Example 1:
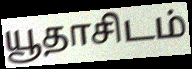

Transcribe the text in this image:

யூதாசிடம்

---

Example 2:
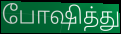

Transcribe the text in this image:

போஷித்து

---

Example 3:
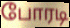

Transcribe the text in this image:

போரடி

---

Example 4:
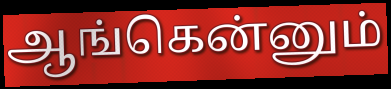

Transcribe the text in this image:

ஆங்கென்னும்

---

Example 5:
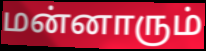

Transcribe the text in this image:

மன்னாரும்